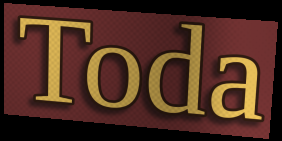
Toda